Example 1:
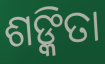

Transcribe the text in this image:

ଶଙ୍କିତା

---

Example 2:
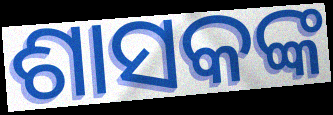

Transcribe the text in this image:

ଶାସକଙ୍କ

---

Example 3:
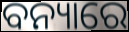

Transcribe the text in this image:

ବନ୍ୟାରେ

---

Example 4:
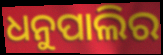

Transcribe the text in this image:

ଧନୁପାଲିର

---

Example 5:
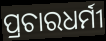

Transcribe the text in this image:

ପ୍ରଚାରଧର୍ମୀ